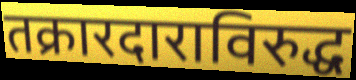
तक्रारदाराविरुद्ध